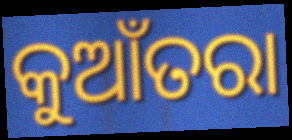
କୁଆଁତରା